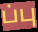
ப்பு